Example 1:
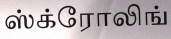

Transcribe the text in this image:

ஸ்க்ரோலிங்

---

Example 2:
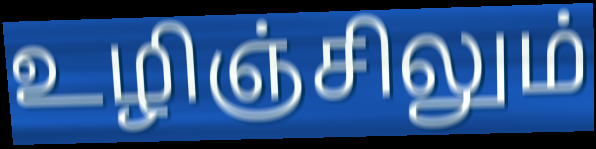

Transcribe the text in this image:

உழிஞ்சிலும்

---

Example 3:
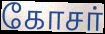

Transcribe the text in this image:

கோசர்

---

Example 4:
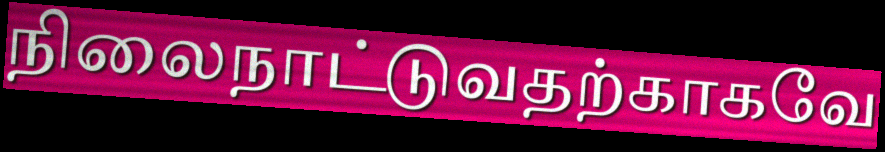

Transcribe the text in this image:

நிலைநாட்டுவதற்காகவே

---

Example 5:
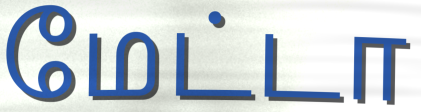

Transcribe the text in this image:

மேட்டா